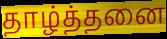
தாழ்த்தனை